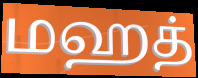
மஹத்